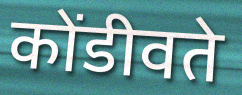
कोंडीवते